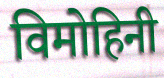
विमोहिनी